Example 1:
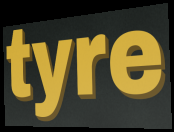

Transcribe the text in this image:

tyre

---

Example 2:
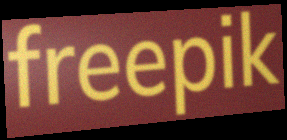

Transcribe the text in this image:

freepik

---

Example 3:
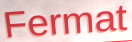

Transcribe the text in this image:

Fermat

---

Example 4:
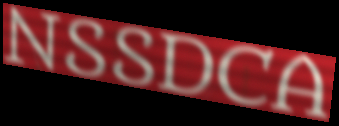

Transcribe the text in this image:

NSSDCA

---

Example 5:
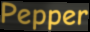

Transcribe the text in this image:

Pepper